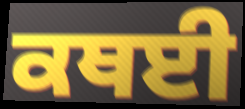
ਕਥਈ